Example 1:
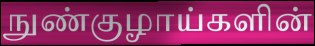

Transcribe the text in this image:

நுண்குழாய்களின்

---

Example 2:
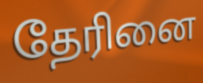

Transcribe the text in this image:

தேரினை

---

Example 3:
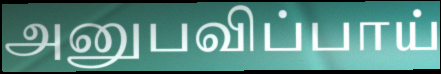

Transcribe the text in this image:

அனுபவிப்பாய்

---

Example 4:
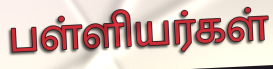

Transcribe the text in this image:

பள்ளியர்கள்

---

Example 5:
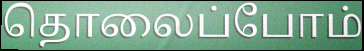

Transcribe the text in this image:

தொலைப்போம்